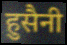
हुसैनी